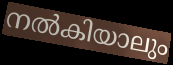
നൽകിയാലും